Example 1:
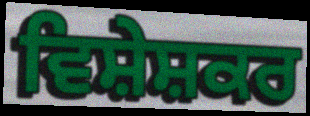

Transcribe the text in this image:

ਵਿਸ਼ੇਸ਼ਕਰ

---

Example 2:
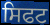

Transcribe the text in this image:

ਸਿਫਟ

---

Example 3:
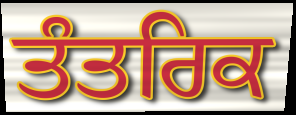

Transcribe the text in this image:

ਤੰਤਰਿਕ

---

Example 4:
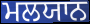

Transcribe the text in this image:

ਮਲਯਾਨ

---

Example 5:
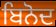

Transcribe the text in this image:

ਬਿਨੋਦ